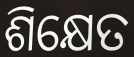
ଶିକ୍ଷେତ